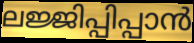
ലജ്ജിപ്പിപ്പാൻ